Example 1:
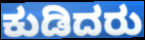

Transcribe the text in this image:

ಕುಡಿದರು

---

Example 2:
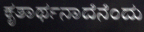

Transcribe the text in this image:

ಕೃತಾರ್ಥನಾದೆನೆಂದು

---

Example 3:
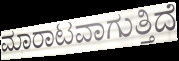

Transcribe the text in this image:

ಮಾರಾಟವಾಗುತ್ತಿದೆ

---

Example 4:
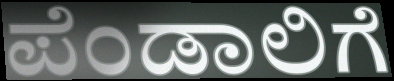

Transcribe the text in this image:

ಪೆಂಡಾಲಿಗೆ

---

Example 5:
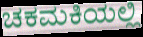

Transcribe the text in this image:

ಚಕಮಕಿಯಲ್ಲಿ